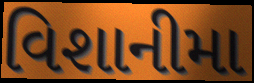
વિશાનીમા